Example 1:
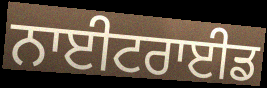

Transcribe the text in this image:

ਨਾਈਟਰਾਈਡ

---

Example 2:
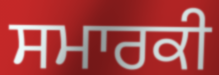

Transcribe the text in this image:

ਸਮਾਰਕੀ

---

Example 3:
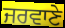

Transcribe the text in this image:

ਜਰਵਾਣੇ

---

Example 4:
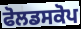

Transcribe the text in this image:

ਫੋਲਡਸਕੋਪ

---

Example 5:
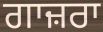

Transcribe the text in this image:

ਗਾਜ਼ਰਾ